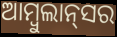
ଆମ୍ବୁଲାନ୍‌ସର